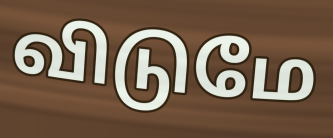
விடுமே